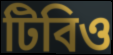
টিবিও